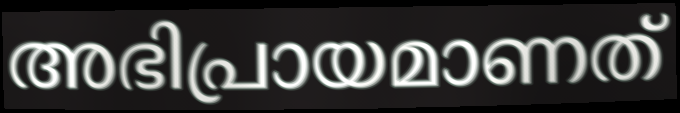
അഭിപ്രായമാണത്